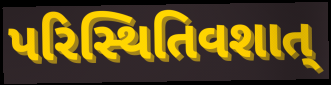
પરિસ્થિતિવશાત્